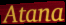
Atana